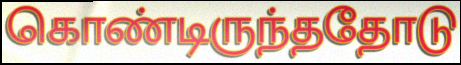
கொண்டிருந்ததோடு